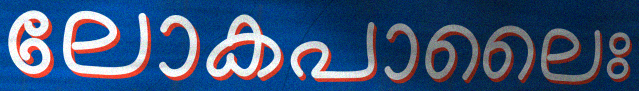
ലോകപാലൈഃ